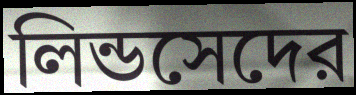
লিন্ডসেদের